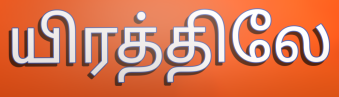
யிரத்திலே